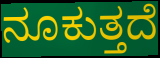
ನೂಕುತ್ತದೆ